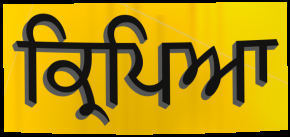
ਕ੍ਰਿਪਿਆ